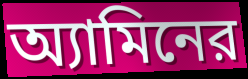
অ্যামিনের